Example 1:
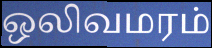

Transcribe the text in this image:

ஒலிவமரம்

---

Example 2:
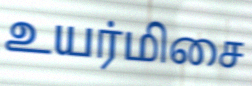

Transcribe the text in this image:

உயர்மிசை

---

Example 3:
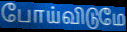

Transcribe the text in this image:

போய்விடுமே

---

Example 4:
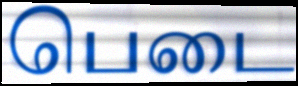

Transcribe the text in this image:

பெடை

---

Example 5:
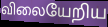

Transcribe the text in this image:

விலையேறிய